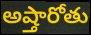
అష్తారోతు